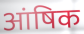
आंषिक